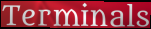
Terminals